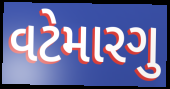
વટેમારગુ